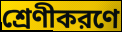
শ্রেণীকরণে